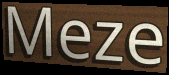
Meze